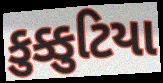
કુક્કુટિયા